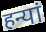
हन्यां